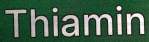
Thiamin